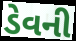
ડેવની